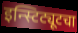
इन्स्टिट्यूटचा